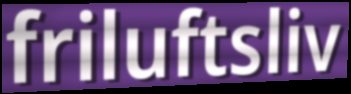
friluftsliv